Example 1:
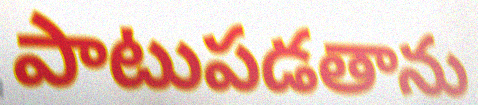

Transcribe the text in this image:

పాటుపడతాను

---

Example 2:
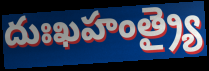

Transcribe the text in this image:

దుఃఖహంత్ర్యై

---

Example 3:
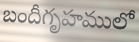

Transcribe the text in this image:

బందీగృహములో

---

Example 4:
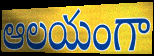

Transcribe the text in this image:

ఆలయంగా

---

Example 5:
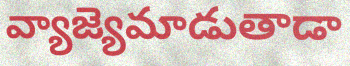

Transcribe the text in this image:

వ్యాజ్యెమాడుతాడా